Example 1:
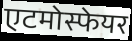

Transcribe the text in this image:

एटमोस्फेयर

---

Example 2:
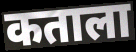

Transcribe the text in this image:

कताला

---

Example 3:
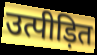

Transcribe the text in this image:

उत्पीड़ित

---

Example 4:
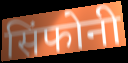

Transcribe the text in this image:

सिंफोनी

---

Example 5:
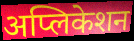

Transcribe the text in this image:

अप्लिकेशन